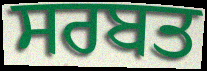
ਸਰਬਤ